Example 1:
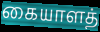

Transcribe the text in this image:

கையாளத்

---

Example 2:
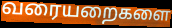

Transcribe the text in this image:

வரையறைகளை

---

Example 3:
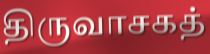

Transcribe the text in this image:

திருவாசகத்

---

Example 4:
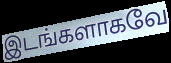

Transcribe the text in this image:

இடங்களாகவே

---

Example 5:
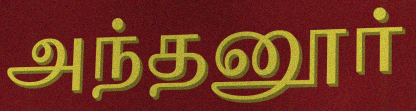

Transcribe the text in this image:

அந்தனூர்